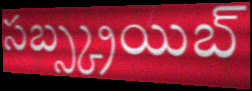
సబ్స్క్రయిబ్